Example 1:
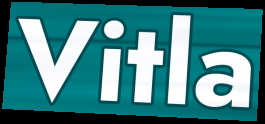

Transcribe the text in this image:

Vitla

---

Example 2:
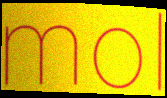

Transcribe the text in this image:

mol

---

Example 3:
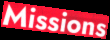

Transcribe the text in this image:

Missions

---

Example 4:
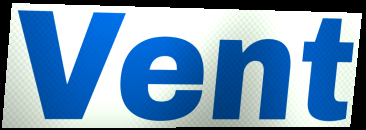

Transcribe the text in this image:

Vent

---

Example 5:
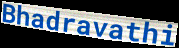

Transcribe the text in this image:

Bhadravathi